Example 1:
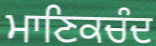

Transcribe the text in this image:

ਮਾਣਿਕਚੰਦ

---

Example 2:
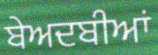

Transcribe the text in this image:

ਬੇਅਦਬੀਆਂ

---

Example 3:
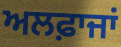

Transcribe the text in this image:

ਅਲਫ਼ਾਜਾਂ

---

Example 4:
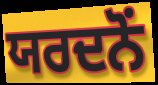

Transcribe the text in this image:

ਯਰਦਨੋਂ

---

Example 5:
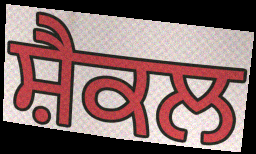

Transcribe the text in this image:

ਸ਼ੈਕਲ